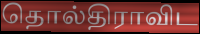
தொல்திராவிட